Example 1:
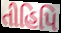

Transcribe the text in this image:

તીહિપિ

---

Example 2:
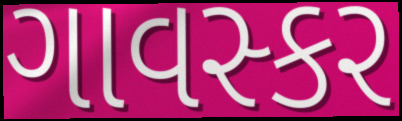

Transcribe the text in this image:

ગાવસ્કર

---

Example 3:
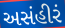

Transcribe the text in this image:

અસંહીરં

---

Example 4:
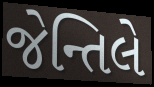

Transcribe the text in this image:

જેન્તિલે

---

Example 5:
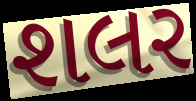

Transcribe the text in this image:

શલર